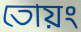
তোয়ং